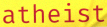
atheist